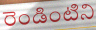
రెండింటిని